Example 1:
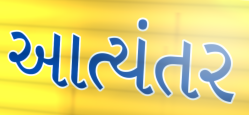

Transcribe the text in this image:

આત્યંતર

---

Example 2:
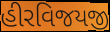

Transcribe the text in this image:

હીરવિજયજી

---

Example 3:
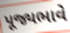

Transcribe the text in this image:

પૂજ્યભાવે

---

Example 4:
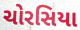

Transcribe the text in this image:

ચોરસિયા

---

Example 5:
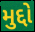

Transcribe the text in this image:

મુદ્દો